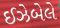
ઈઝેબેલે